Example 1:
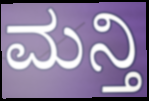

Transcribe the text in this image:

ಮನ್ತಿ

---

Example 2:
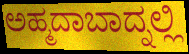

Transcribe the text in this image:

ಅಹ್ಮದಾಬಾದ್ನಲ್ಲಿ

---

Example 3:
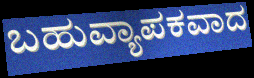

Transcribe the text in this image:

ಬಹುವ್ಯಾಪಕವಾದ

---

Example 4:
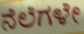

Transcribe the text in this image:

ನೆಲೆಗಳೇ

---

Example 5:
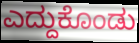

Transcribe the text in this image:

ಎದ್ದುಕೊಂಡು